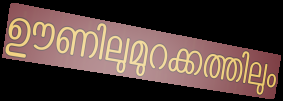
ഊണിലുമുറക്കത്തിലും